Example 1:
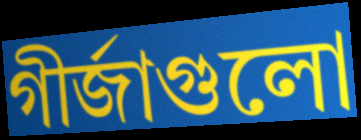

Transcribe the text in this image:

গীর্জাগুলো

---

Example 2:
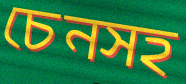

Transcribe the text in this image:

চেনসহ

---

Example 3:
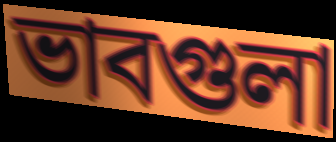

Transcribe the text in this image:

ভাবগুলা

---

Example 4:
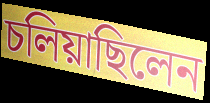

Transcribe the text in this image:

চলিয়াছিলেন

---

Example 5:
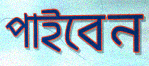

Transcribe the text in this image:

পাইবেন